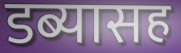
डब्यासह